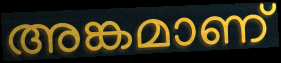
അങ്കമാണ്